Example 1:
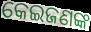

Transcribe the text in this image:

କେଇଜଣଙ୍କ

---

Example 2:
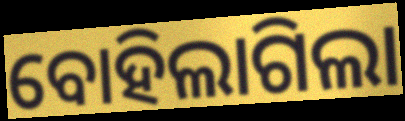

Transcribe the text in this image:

ବୋହିଲାଗିଲା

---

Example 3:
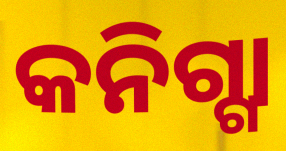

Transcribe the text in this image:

କନିଗ୍ଗା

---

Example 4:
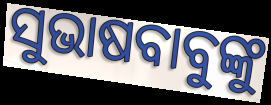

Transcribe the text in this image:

ସୁଭାଷବାବୁଙ୍କୁ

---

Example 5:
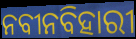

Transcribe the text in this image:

ନବୀନବିହାରୀ